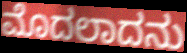
ಮೊದಲಾದನು